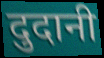
दुदानी